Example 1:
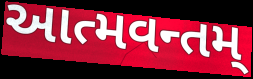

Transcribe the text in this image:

આત્મવન્તમ્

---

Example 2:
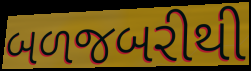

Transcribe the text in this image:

બળજબરીથી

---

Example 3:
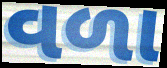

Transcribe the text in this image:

વળા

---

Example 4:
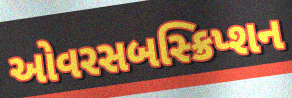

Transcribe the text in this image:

ઓવરસબસ્ક્રિપ્શન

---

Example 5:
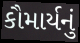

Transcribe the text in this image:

કૌમાર્યનું